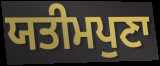
ਯਤੀਮਪੁਣਾ